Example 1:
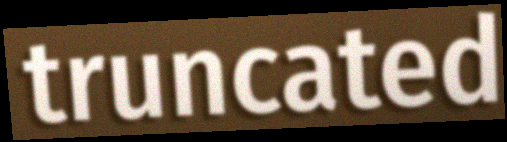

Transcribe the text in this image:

truncated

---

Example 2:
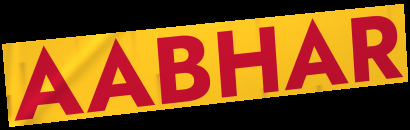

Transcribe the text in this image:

AABHAR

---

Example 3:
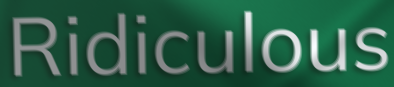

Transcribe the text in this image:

Ridiculous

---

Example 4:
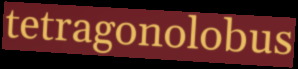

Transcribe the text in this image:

tetragonolobus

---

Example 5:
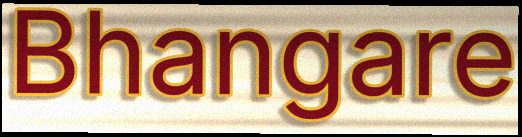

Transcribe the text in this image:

Bhangare